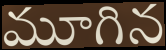
మూగిన